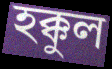
হক্কুল